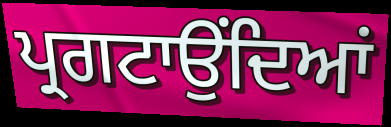
ਪ੍ਰਗਟਾਉਂਦਿਆਂ